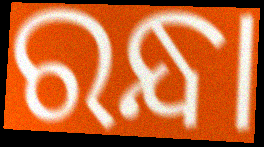
ରନ୍ଧା